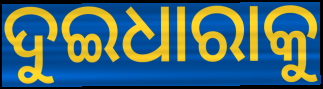
ଦୁଇଧାରାକୁ